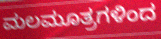
ಮಲಮೂತ್ರಗಳಿಂದ